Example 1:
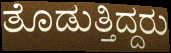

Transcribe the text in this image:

ತೊಡುತ್ತಿದ್ದರು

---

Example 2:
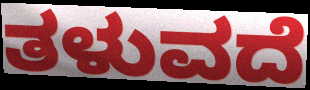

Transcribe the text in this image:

ತಳುವದೆ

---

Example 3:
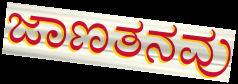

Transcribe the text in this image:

ಜಾಣತನವು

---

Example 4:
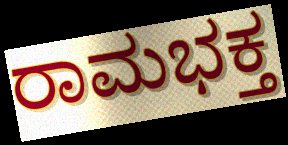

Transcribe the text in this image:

ರಾಮಭಕ್ತ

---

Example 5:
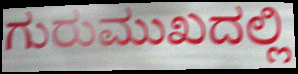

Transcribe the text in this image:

ಗುರುಮುಖದಲ್ಲಿ